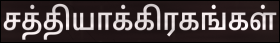
சத்தியாக்கிரகங்கள்